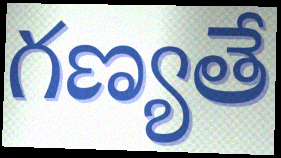
గణ్యతే